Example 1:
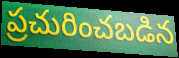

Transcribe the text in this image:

ప్రచురించబడిన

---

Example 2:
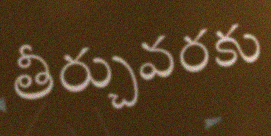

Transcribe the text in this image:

తీర్చువరకు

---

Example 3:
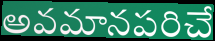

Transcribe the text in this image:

అవమానపరిచే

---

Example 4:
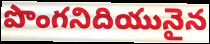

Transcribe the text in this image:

పొంగనిదియునైన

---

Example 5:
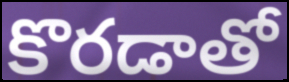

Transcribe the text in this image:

కొరడాతో